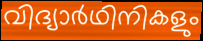
വിദ്യാർഥിനികളും